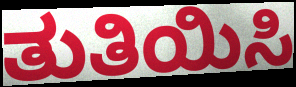
ತುತಿಯಿಸಿ